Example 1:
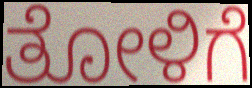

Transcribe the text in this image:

ತೋಳಿಗೆ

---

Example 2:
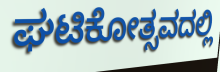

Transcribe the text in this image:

ಘಟಿಕೋತ್ಸವದಲ್ಲಿ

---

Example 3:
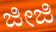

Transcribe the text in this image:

ಜೀಜಿ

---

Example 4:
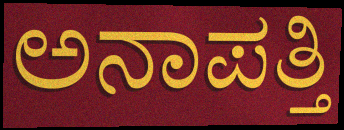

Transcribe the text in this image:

ಅನಾಪತ್ತಿ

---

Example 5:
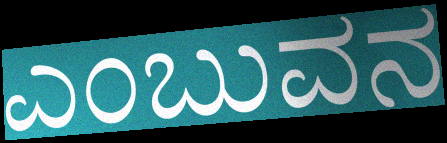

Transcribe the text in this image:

ಎಂಬುವನ